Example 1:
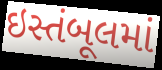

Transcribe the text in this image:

ઇસ્તંબૂલમાં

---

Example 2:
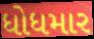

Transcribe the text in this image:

ધોધમાર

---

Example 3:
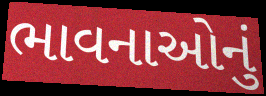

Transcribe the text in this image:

ભાવનાઓનું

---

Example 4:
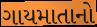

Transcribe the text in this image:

ગાયમાતાનો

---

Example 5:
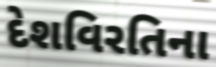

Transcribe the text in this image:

દેશવિરતિના